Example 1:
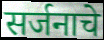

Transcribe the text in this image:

सर्जनाचे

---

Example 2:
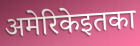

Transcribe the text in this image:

अमेरिकेइतका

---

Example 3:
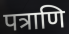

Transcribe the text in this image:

पत्राणि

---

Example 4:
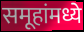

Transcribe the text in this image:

समूहांमध्ये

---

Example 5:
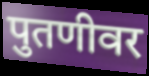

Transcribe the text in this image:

पुतणीवर